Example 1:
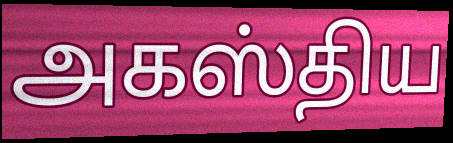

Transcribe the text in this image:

அகஸ்திய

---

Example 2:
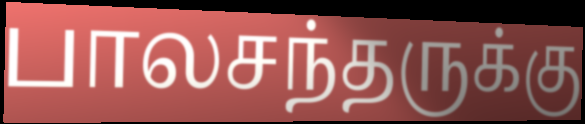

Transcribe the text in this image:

பாலசந்தருக்கு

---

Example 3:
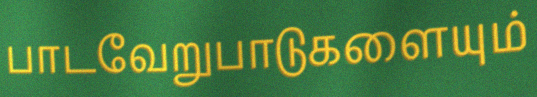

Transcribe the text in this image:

பாடவேறுபாடுகளையும்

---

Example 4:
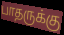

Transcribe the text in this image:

பாதருக்கு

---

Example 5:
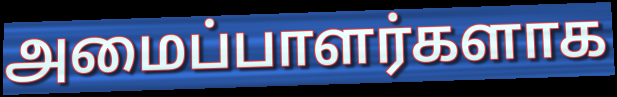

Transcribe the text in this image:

அமைப்பாளர்களாக